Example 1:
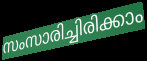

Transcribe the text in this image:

സംസാരിച്ചിരിക്കാം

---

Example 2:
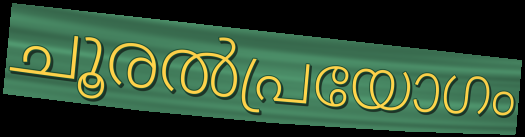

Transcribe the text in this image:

ചൂരൽപ്രയോഗം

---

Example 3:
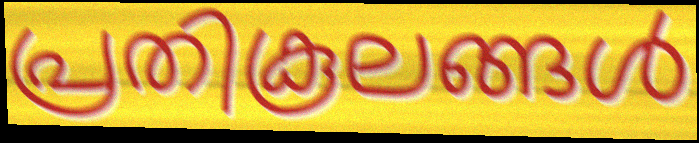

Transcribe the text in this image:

പ്രതികൂലങ്ങൾ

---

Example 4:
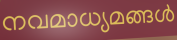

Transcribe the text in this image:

നവമാധ്യമങ്ങൾ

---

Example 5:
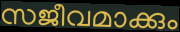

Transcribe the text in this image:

സജീവമാക്കും